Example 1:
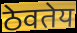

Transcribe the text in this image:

ठेवतेय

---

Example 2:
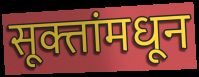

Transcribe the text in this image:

सूक्तांमधून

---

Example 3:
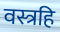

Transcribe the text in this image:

वस्त्रहि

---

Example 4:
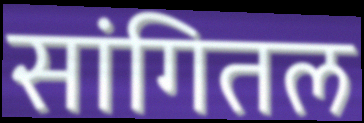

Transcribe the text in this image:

सांगितल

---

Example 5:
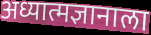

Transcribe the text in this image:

अध्यात्मज्ञानाला